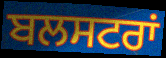
ਬਲਸਟਰਾਂ